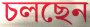
চলছেন